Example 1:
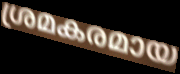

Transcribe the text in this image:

ശ്രമകരമായ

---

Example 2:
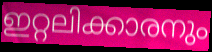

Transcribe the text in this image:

ഇറ്റലിക്കാരനും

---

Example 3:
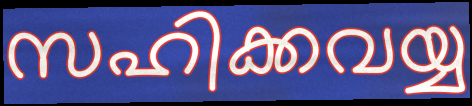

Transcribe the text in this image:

സഹിക്കവയ്യ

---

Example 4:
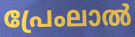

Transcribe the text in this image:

പ്രേംലാൽ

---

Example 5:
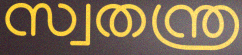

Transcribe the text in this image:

സ്വതന്ത്ര